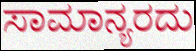
ಸಾಮಾನ್ಯರದು